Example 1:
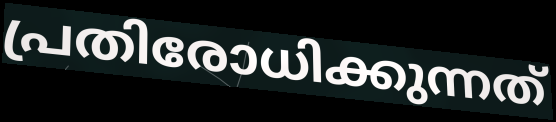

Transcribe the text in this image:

പ്രതിരോധിക്കുന്നത്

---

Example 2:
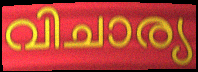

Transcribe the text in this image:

വിചാര്യ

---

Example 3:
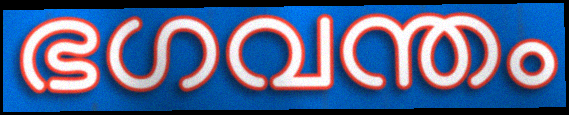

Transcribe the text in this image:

ഭഗവന്തം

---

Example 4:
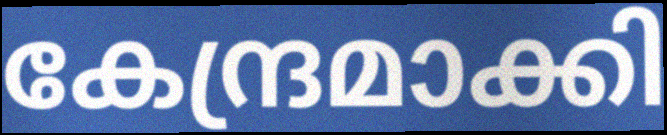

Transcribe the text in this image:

കേന്ദ്രമാക്കി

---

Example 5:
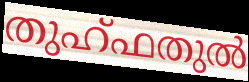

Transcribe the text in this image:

തുഹ്ഫതുൽ